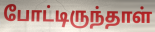
போட்டிருந்தாள்